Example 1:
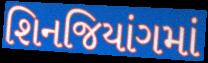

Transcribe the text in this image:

શિનજિયાંગમાં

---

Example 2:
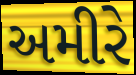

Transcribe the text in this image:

અમીરે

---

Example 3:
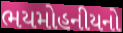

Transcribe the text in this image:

ભયમોહનીયનો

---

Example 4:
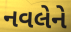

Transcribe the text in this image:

નવલેને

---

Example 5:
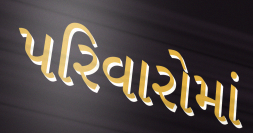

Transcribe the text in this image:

પરિવારોમાં